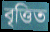
বৃত্তিত